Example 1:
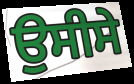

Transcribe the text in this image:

ਉਸੀਸੇ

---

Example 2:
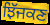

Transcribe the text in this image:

ਝਿੱਜਕਣ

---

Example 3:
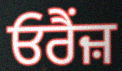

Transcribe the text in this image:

ਓਰੈਂਜ਼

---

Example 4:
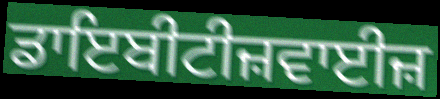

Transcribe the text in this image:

ਡਾਇਬੀਟੀਜ਼ਵਾਈਜ਼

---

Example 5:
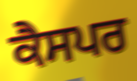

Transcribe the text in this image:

ਕੈਸਪਰ